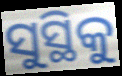
ସୁସ୍ଥିକୁ